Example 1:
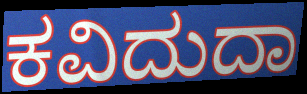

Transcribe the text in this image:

ಕವಿದುದಾ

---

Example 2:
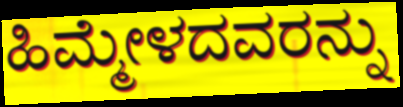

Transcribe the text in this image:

ಹಿಮ್ಮೇಳದವರನ್ನು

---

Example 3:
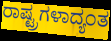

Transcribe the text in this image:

ರಾಷ್ಟ್ರಗಳಾದ್ಯಂತ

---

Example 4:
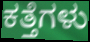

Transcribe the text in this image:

ಕತ್ತೆಗಳು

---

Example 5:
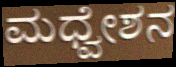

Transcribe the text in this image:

ಮಧ್ವೇಶನ